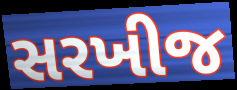
સરખીજ